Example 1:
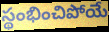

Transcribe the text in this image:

స్థంభించిపోయే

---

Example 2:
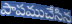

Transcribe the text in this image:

పాపముచేసిన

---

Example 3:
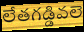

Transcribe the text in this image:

లేతగడ్డివలె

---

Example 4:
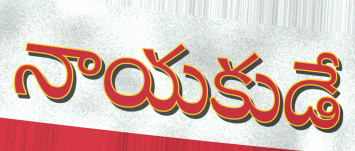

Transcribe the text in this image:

నాయకుడే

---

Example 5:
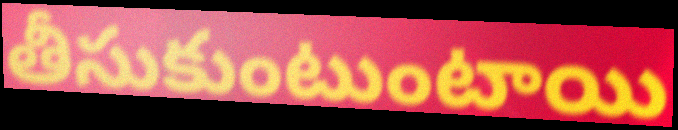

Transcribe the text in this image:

తీసుకుంటుంటాయి